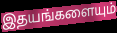
இதயங்களையும்